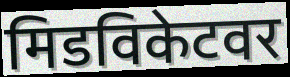
मिडविकेटवर